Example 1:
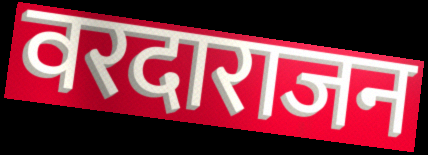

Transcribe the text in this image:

वरदाराजन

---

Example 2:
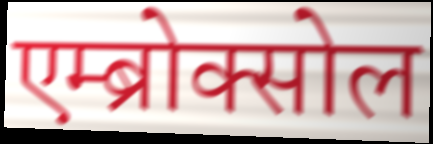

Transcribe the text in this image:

एम्ब्रोक्सोल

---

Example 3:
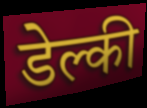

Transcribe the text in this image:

डेल्की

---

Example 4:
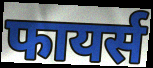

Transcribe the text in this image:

फायर्स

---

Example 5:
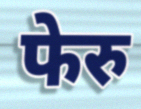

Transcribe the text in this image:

फेरु